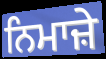
ਨਿਮਾਜ਼ੇ